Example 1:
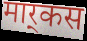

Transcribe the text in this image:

मार्कस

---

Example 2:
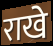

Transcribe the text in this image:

राखे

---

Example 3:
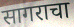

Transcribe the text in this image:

सागराचा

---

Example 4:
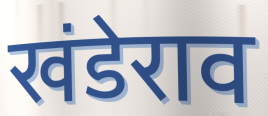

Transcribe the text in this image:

खंडेराव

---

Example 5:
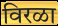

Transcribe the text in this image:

विरळा